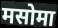
मसोमा